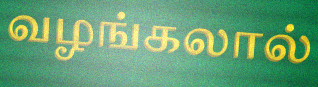
வழங்கலால்